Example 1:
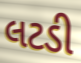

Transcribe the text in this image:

લટડી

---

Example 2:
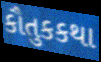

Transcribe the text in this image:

કૌતુકકથા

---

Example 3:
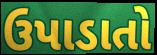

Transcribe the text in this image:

ઉપાડાતો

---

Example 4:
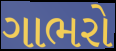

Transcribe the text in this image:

ગાભરો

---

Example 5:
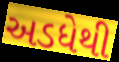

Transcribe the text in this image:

અડધેથી